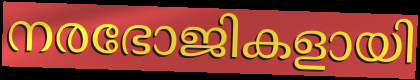
നരഭോജികളായി